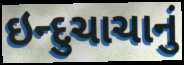
ઇન્દુચાચાનું